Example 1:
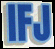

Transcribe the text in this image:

IFJ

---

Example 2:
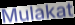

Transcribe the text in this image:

Mulakat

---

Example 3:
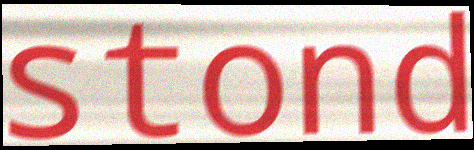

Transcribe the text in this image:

stond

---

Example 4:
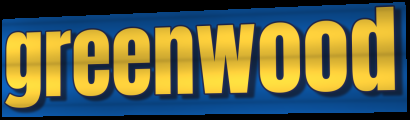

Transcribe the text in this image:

greenwood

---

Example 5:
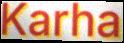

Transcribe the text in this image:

Karha